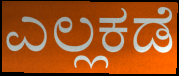
ಎಲ್ಲಕಡೆ